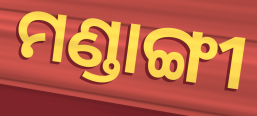
ମଣ୍ଡାଙ୍ଗୀ